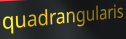
quadrangularis